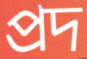
প্রদ